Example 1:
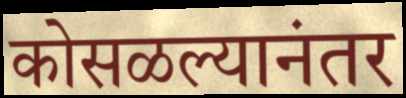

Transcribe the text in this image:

कोसळल्यानंतर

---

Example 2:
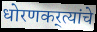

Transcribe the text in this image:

धोरणकर्त्यांचे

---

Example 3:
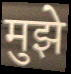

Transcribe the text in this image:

मुझे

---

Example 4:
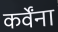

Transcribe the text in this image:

कर्वेंना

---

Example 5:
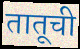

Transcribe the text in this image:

तातूची